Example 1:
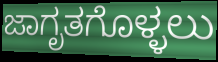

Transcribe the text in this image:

ಜಾಗೃತಗೊಳ್ಳಲು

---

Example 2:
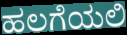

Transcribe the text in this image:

ಹಲಗೆಯಲಿ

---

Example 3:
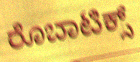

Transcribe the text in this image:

ರೊಬಾಟಿಕ್ಸ್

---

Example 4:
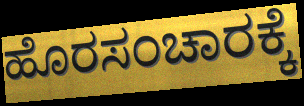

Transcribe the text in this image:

ಹೊರಸಂಚಾರಕ್ಕೆ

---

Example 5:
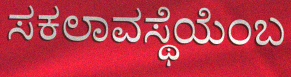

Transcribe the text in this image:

ಸಕಲಾವಸ್ಥೆಯೆಂಬ